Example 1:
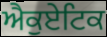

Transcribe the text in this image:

ਐਕੁਏਟਿਕ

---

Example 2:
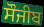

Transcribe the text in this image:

ਸੌਜੀਬ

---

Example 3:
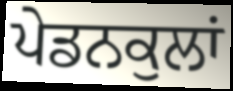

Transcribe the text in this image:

ਪੇਡਨਕੁਲਾਂ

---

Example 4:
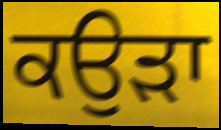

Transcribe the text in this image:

ਕਉੜਾ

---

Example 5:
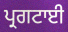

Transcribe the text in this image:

ਪ੍ਰਗਟਾਈ